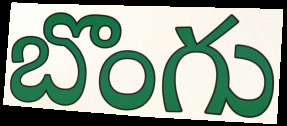
బొంగు